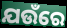
ଯଉଁରେ